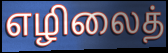
எழிலைத்